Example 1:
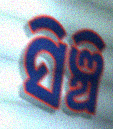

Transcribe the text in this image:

ସିଞ୍ଚି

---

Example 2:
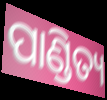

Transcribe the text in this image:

ପାଣ୍ଡିତ୍ୟ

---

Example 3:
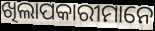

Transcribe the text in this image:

ଖିଲାପକାରୀମାନେ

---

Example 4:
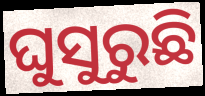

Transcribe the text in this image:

ଘୁସୁରୁଛି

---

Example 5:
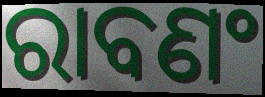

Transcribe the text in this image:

ରାବଣଂ